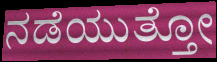
ನಡೆಯುತ್ತೋ